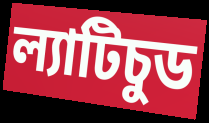
ল্যাটিচুড